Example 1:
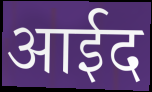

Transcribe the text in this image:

आईद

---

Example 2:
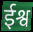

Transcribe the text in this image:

ईश्व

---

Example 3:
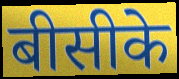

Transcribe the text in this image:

बीसीके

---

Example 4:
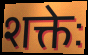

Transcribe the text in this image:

शक्तेः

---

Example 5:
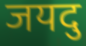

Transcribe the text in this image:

जयदु